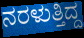
ನರಳುತ್ತಿದ್ದ